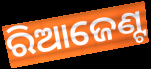
ରିଆଜେଣ୍ଟ